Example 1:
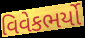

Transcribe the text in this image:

વિવેકભર્યો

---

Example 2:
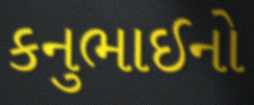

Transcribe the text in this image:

કનુભાઈનો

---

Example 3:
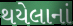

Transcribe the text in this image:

થયેલાનાં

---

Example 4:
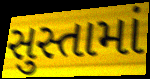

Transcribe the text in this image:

સુસ્તામાં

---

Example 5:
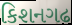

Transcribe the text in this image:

કિશનગઢ